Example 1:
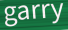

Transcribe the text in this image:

garry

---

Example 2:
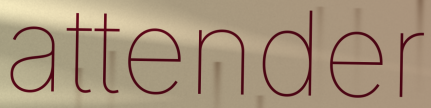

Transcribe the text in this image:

attender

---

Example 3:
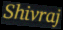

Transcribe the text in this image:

Shivraj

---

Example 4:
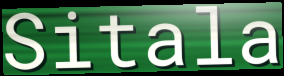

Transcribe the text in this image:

Sitala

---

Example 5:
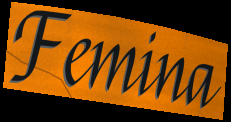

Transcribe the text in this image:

Femina